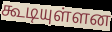
கூடியுள்ளன